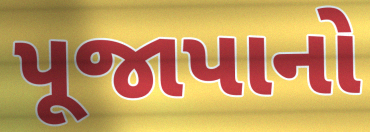
પૂજાપાનો